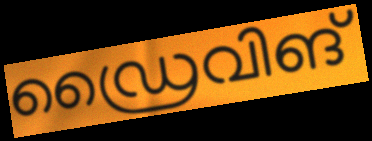
ഡ്രൈവിങ്